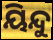
ୟିନ୍ଦୁ